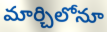
మార్చిలోనూ